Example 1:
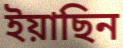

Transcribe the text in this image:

ইয়াছিন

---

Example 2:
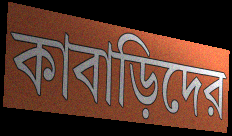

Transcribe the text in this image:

কাবাড়িদের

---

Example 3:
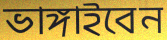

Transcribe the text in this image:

ভাঙ্গাইবেন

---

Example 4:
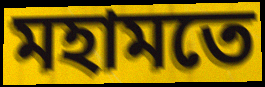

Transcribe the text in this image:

মহামতে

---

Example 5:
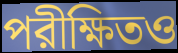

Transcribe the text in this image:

পরীক্ষিতও